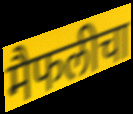
मैफलीचा